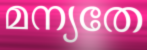
മന്യതേ